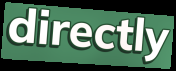
directly